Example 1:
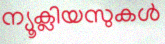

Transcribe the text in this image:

ന്യൂക്ലിയസുകൾ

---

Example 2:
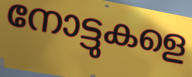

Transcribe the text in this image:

നോട്ടുകളെ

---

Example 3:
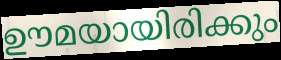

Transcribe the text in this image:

ഊമയായിരിക്കും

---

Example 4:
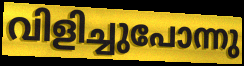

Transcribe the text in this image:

വിളിച്ചുപോന്നു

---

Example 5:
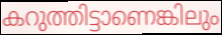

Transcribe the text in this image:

കറുത്തിട്ടാണെങ്കിലും